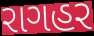
રાગહર